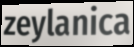
zeylanica